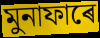
মুনাফাৰে